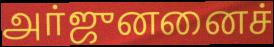
அர்ஜுனனைச்